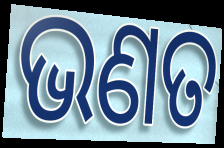
ଭଣତ